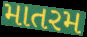
માતરમ